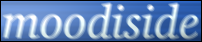
moodiside